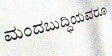
ಮಂದಬುದ್ಧಿಯವರೂ